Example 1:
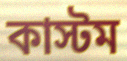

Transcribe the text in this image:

কাস্টম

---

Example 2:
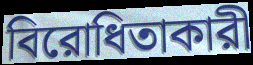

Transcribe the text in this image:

বিরোধিতাকারী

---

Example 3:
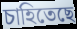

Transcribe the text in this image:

চাহিতেছে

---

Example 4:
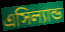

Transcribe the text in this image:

এসিল্যান্ড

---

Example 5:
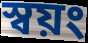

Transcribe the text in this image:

স্বয়ং